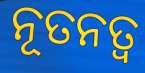
ନୂତନତ୍ୱ